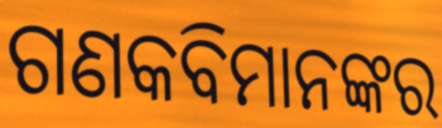
ଗଣକବିମାନଙ୍କର